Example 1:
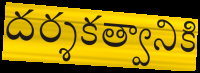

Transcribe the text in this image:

దర్శకత్వానికి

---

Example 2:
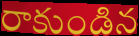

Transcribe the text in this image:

రాకుండిన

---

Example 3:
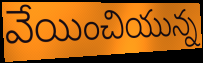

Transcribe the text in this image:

వేయించియున్న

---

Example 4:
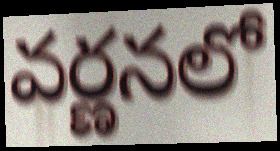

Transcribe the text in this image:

వర్ణనలో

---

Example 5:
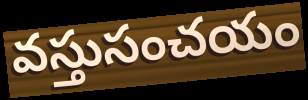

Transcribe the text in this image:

వస్తుసంచయం